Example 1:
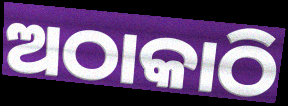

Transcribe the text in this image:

ଅଠାକାଠି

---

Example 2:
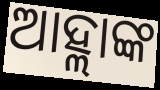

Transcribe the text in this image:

ଆହ୍ଲାଙ୍କ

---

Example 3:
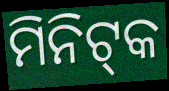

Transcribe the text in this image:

ମିନିଟ୍‍କ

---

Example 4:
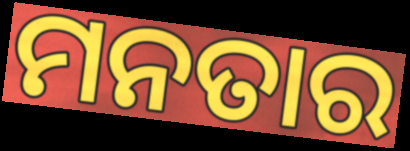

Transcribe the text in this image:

ମନତାର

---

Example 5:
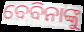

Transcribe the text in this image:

ବେବିନାଙ୍କୁ